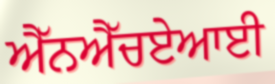
ਐੱਨਐੱਚਏਆਈ